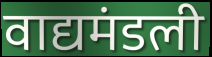
वाद्यमंडली